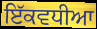
ਇੱਕਵਧੀਆ